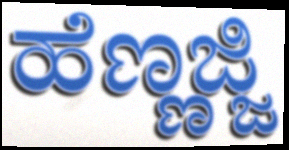
ಹೆಣ್ಣಜ್ಜಿ